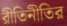
রীতিনীতির